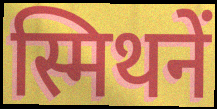
स्मिथनें